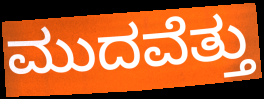
ಮುದವೆತ್ತು